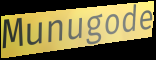
Munugode